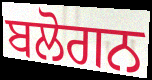
ਬਲੋਗਨ